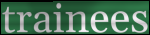
trainees